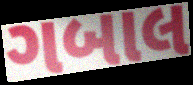
ગબાલ